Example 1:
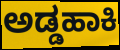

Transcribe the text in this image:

ಅಡ್ಡಹಾಕಿ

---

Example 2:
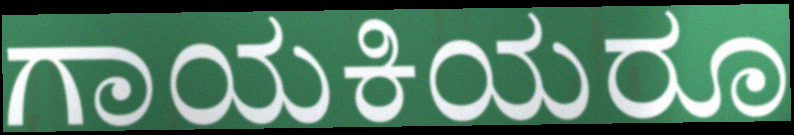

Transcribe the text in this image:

ಗಾಯಕಿಯರೂ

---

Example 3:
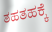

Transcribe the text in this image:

ತಹತಹಕ್ಕೆ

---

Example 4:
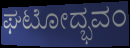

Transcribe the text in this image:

ಘಟೋದ್ಭವಂ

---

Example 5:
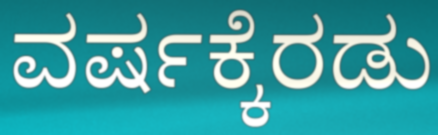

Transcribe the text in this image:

ವರ್ಷಕ್ಕೆರಡು